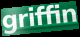
griffin